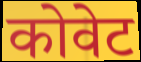
कोवेट